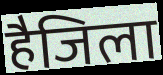
हैजिला